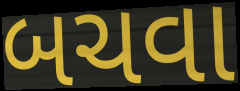
બચવા